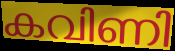
കവിണി